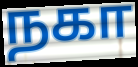
நகா